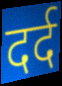
दर्द